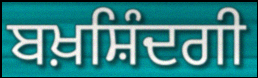
ਬਖ਼ਸ਼ਿੰਦਗੀ